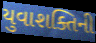
યુવાશક્તિની